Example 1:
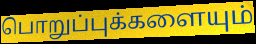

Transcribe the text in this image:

பொறுப்புக்களையும்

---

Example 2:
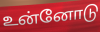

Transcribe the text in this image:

உன்னோடு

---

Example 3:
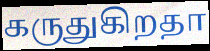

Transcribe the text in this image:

கருதுகிறதா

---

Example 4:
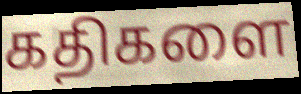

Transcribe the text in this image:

கதிகளை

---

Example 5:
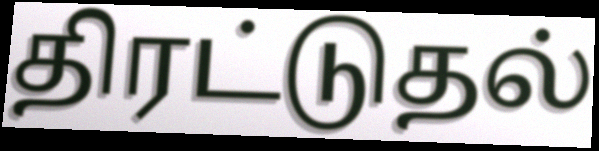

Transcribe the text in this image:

திரட்டுதல்